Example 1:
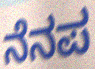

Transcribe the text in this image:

ನೆನಪ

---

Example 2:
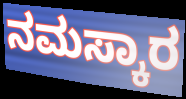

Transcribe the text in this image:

ನಮಸ್ಕಾರ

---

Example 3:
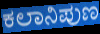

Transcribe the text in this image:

ಕಲಾನಿಪುಣ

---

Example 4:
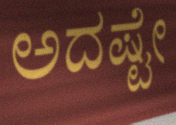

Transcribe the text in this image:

ಅದಷ್ಟೇ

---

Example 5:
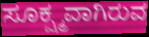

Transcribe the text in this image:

ಸೂಕ್ಷ್ಮವಾಗಿರುವ